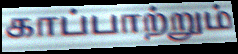
காப்பாற்றும்